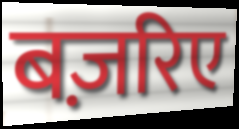
बज़रिए